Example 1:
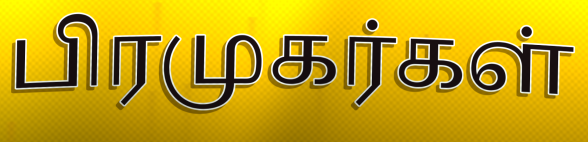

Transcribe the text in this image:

பிரமுகர்கள்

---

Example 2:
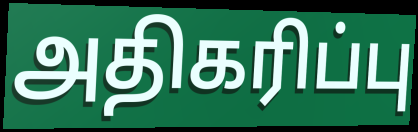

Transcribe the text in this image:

அதிகரிப்பு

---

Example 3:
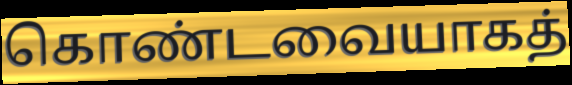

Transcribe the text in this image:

கொண்டவையாகத்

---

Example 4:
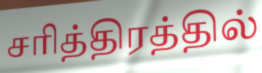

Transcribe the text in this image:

சரித்திரத்தில்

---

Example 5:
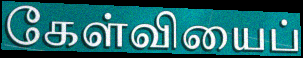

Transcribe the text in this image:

கேள்வியைப்